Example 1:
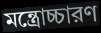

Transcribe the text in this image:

মন্ত্রোচ্চারণ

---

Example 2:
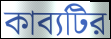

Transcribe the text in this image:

কাব্যটির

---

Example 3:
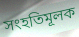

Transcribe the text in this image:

সংহতিমূলক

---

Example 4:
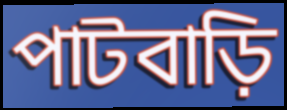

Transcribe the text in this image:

পাটবাড়ি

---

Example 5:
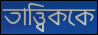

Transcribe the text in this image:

তাত্ত্বিককে